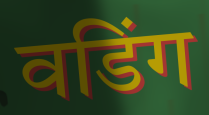
वडिंग